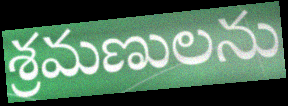
శ్రమణులను